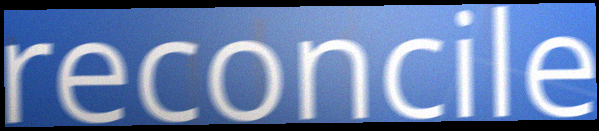
reconcile